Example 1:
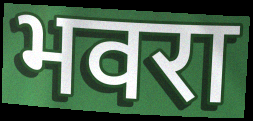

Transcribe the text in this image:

भवरा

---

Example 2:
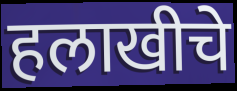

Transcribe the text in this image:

हलाखीचे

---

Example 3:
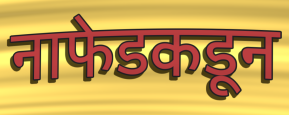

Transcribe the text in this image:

नाफेडकडून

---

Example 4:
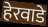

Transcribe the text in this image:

हेरवाडे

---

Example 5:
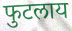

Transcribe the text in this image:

फुटलाय